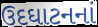
ઉદઘાટનનાં